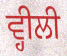
ਵ੍ਹੀਲੀ